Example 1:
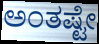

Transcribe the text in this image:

ಅಂತಷ್ಟೇ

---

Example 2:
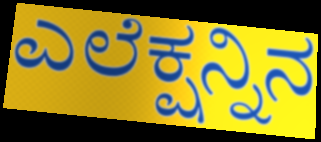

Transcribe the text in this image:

ಎಲೆಕ್ಷನ್ನಿನ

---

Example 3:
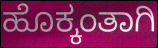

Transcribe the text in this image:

ಹೊಕ್ಕಂತಾಗಿ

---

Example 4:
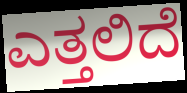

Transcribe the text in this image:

ಎತ್ತಲಿದೆ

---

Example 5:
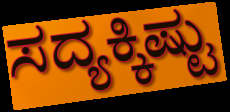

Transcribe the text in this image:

ಸದ್ಯಕ್ಕಿಷ್ಟು